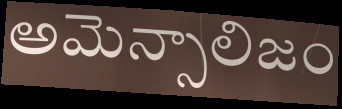
అమెన్సాలిజం